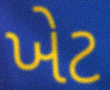
ખેટ